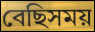
বেছিসময়